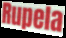
Rupela